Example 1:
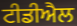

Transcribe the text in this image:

ਟੀਡੀਐਲ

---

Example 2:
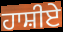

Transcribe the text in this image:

ਹਾਸ਼ੀਏ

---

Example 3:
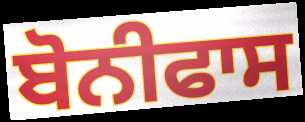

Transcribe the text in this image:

ਬੋਨੀਫਾਸ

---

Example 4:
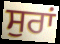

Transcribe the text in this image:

ਸੁਰਾਂ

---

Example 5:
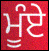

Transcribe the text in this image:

ਮੂੰਏ